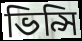
ভিন্সি